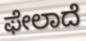
ಫೇಲಾದೆ